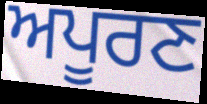
ਅਪੂਰਣ